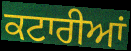
ਕਟਾਰੀਆਂ